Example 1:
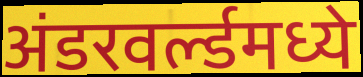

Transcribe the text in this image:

अंडरवर्ल्डमध्ये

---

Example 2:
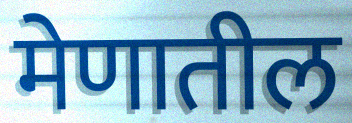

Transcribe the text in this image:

मेणातील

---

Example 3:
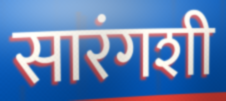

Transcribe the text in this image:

सारंगशी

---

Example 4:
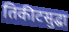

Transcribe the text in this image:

तिकीटसुद्धा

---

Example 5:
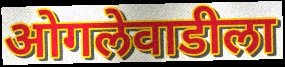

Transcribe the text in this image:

ओगलेवाडीला